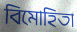
বিমোহিতা